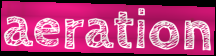
aeration